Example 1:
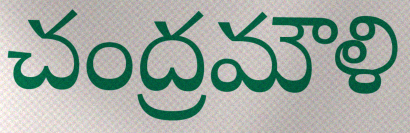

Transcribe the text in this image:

చంద్రమౌళి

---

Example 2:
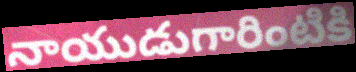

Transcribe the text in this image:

నాయుడుగారింటికి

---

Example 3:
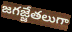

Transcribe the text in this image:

జగజ్జేతలుగా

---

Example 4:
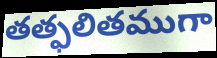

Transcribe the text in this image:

తత్ఫలితముగా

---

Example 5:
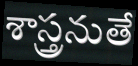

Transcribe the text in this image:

శాస్త్రనుతే